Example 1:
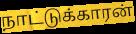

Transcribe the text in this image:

நாட்டுக்காரன்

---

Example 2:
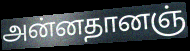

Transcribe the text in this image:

அன்னதானஞ்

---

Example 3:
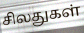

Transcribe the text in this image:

சிலதுகள்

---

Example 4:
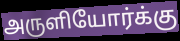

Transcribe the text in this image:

அருளியோர்க்கு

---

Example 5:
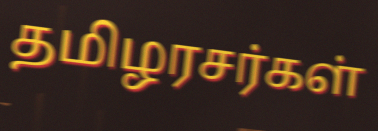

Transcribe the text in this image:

தமிழரசர்கள்